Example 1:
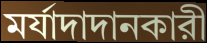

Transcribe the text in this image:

মর্যাদাদানকারী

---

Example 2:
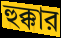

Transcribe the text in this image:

হুক্কার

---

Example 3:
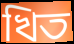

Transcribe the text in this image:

খিত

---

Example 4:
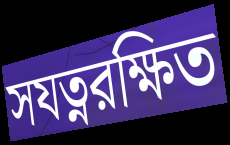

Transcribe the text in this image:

সযত্নরক্ষিত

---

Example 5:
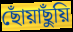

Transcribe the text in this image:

ছোঁয়াছুঁয়ি